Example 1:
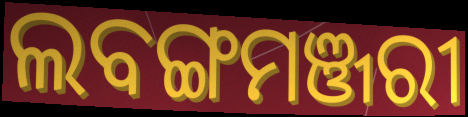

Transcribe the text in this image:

ଲବଙ୍ଗମଞ୍ଜରୀ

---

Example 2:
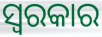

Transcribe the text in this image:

ସ୍ୱରକାର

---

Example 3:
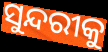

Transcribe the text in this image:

ସୁନ୍ଦରୀକୁ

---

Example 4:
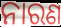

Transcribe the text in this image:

ନାରଣ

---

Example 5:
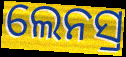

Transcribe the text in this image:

ଲେନସ୍ର